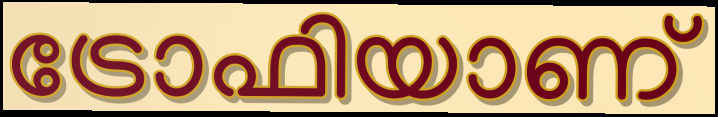
ട്രോഫിയാണ്